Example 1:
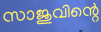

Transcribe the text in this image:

സാജുവിന്റെ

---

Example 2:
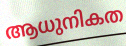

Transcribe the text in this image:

ആധുനികത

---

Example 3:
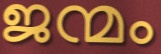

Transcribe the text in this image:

ജന്മം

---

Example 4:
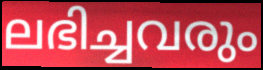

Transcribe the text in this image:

ലഭിച്ചവരും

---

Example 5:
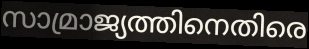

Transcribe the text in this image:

സാമ്രാജ്യത്തിനെതിരെ